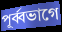
পূর্ব্বভাগে